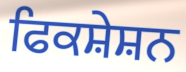
ਫਿਕਸ਼ੇਸ਼ਨ